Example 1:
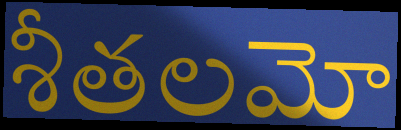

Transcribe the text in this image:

శీతలమో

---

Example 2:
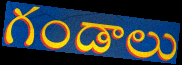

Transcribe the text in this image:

గండాలు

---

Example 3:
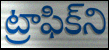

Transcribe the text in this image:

ట్రాఫిక్‌ని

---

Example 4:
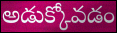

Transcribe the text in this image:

అడుక్కోవడం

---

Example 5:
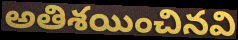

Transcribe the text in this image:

అతిశయించినవి